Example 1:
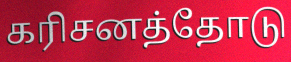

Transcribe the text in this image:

கரிசனத்தோடு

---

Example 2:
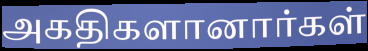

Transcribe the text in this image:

அகதிகளானார்கள்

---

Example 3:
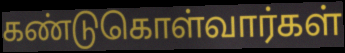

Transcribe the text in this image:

கண்டுகொள்வார்கள்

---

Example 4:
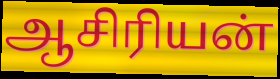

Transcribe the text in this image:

ஆசிரியன்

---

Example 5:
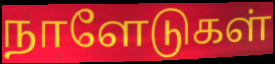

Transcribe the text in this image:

நாளேடுகள்